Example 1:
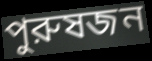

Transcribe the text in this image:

পুৰুষজন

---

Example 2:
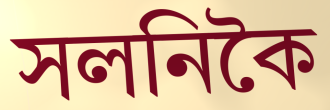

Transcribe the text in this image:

সলনিকৈ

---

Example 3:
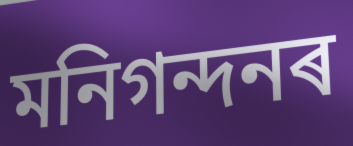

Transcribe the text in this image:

মনিগন্দনৰ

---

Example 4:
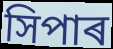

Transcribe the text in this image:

সিপাৰ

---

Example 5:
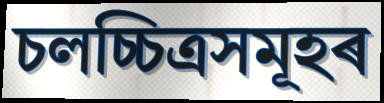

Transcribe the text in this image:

চলচ্চিত্ৰসমূহৰ